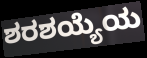
ಶರಶಯ್ಯೆಯ